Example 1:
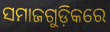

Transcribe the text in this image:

ସମାଜଗୁଡ଼ିକରେ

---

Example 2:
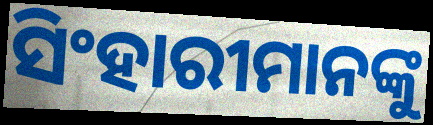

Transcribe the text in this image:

ସିଂହାରୀମାନଙ୍କୁ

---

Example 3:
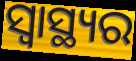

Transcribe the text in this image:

ସ୍ବାସ୍ଥ୍ୟର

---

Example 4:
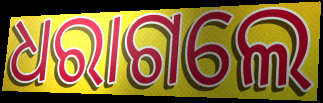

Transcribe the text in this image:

ଧରାଗଲେ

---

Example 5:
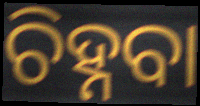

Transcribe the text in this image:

ଚିହ୍ନବା